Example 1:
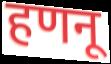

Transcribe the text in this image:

हणनू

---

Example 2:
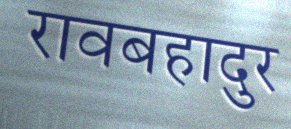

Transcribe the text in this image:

रावबहादुर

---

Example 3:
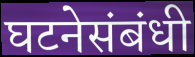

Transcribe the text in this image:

घटनेसंबंधी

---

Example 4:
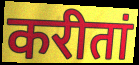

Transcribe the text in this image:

करीतां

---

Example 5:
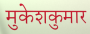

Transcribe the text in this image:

मुकेशकुमार